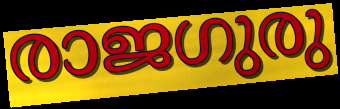
രാജഗുരു